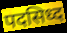
पदसिध्द